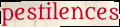
pestilences